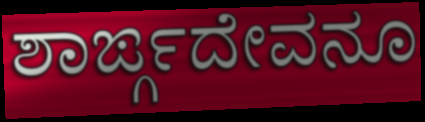
ಶಾರ್ಙ್ಗದೇವನೂ